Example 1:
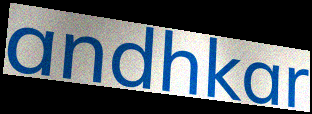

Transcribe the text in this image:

andhkar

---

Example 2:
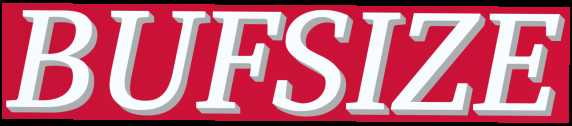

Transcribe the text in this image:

BUFSIZE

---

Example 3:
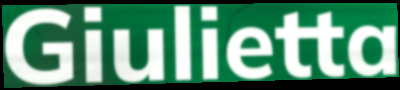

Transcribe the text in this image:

Giulietta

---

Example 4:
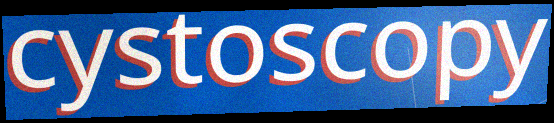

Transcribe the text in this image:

cystoscopy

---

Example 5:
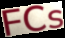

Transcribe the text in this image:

FCs